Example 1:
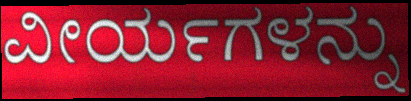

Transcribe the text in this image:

ವೀರ್ಯಗಳನ್ನು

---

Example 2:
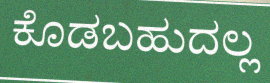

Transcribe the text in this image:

ಕೊಡಬಹುದಲ್ಲ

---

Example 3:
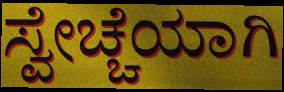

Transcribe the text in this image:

ಸ್ವೇಚ್ಚೆಯಾಗಿ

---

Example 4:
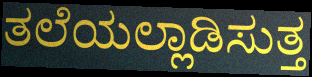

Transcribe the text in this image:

ತಲೆಯಲ್ಲಾಡಿಸುತ್ತ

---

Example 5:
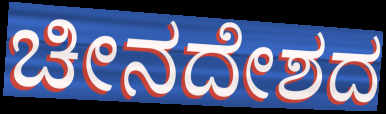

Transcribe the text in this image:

ಚೀನದೇಶದ